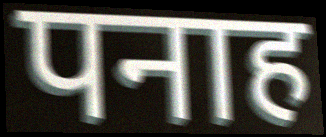
पनाह